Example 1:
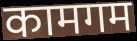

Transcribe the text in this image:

कामगम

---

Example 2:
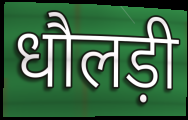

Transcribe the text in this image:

धौलड़ी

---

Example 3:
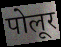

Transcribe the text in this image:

पोलूर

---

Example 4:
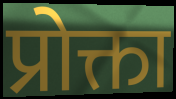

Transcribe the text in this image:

प्रोक्ता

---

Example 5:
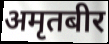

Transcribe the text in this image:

अमृतबीर